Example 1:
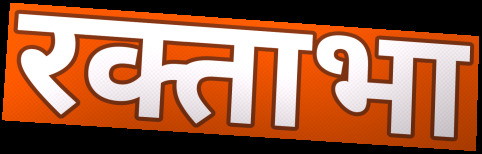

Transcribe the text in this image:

रक्ताभा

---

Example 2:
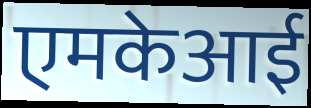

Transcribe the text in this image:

एमकेआई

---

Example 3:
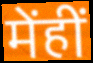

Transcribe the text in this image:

मेंहीं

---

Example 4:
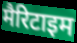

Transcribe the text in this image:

मैरिटाइम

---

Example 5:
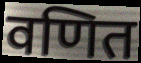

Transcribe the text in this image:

वणित